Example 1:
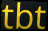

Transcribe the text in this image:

tbt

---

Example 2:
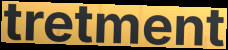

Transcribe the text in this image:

tretment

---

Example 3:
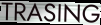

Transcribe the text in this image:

TRASING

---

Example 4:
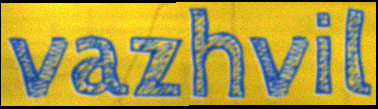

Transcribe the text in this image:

vazhvil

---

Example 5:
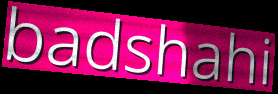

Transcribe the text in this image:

badshahi